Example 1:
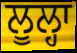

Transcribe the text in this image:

ਲੂਲ੍ਹਾ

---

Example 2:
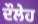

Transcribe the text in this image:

ਦੌਲੇਹ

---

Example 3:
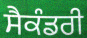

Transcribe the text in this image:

ਸੈਕੰਡਰੀ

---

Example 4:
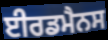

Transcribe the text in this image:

ਈਰਡਮੈਨਸ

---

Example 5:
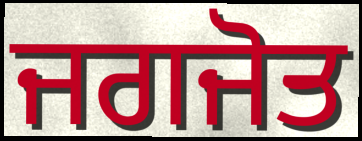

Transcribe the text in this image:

ਜਗਜੋਤ